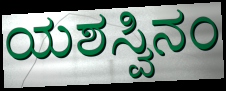
ಯಶಸ್ವಿನಂ